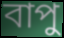
বাপু